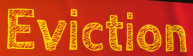
Eviction